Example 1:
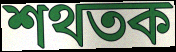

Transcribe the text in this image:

শথতক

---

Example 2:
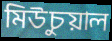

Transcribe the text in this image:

মিউচুয়াল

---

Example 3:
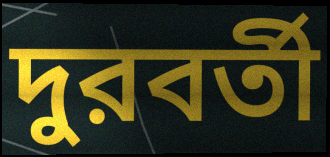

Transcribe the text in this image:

দুরবর্তী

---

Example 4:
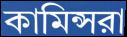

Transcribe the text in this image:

কামিন্সরা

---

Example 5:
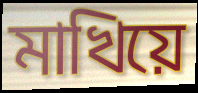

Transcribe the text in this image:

মাখিয়ে